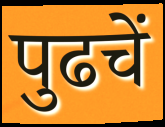
पुढचें